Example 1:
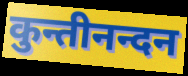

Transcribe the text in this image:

कुन्तीनन्दन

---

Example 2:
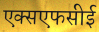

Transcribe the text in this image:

एक्सएफसीई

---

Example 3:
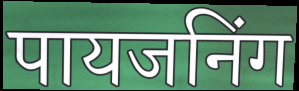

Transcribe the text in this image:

पायजनिंग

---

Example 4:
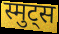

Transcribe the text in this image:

स्मुट्स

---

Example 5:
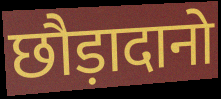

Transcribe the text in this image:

छौड़ादानो